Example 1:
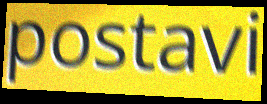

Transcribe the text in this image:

postavi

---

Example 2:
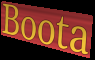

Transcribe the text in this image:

Boota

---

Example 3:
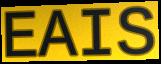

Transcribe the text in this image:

EAIS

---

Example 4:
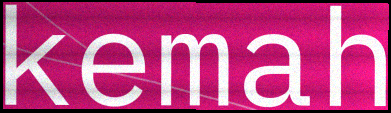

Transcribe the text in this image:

kemah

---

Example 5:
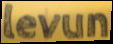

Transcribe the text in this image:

levun